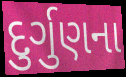
દુર્ગુણના